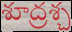
శూద్రశ్చ